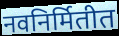
नवनिर्मितीत